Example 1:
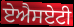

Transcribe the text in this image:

ਏਐਸਏਟੀ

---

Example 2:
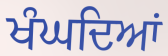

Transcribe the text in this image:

ਖੰਘਦਿਆਂ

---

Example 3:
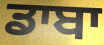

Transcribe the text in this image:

ਡਾਬਾ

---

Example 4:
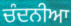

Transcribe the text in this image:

ਚੰਦਨੀਆ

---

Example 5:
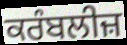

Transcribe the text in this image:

ਕਰੰਬਲੀਜ਼